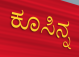
ಕೂಸಿನ್ನ